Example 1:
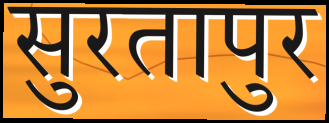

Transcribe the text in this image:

सुरतापुर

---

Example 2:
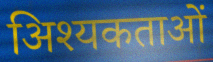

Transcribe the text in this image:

अिश्यकताओं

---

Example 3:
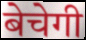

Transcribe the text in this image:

बेचेगी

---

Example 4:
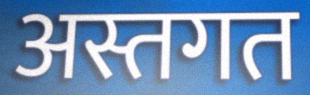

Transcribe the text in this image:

अस्तगत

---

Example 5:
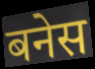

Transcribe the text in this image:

बनेस